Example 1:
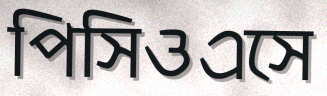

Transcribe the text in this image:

পিসিওএসে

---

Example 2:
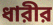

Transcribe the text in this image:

ধারীর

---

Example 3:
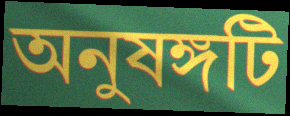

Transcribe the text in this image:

অনুষঙ্গটি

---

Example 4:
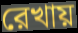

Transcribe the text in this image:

রেখায়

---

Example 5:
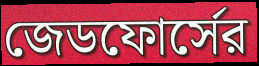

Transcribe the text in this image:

জেডফোর্সের